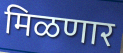
मिळणार